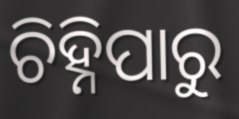
ଚିହ୍ନିପାରୁ